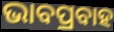
ଭାବପ୍ରବାହ